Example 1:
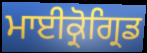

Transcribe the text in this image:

ਮਾਈਕ੍ਰੋਗ੍ਰਿਡ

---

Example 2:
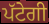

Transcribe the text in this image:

ਪੱਟੇਗੀ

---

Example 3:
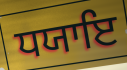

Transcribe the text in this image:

ਧਯਾਇ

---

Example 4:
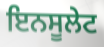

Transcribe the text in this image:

ਇਨਸੂਲੇਟ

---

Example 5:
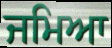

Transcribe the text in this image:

ਜਮਿਆ